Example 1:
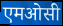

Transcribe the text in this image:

एमओसी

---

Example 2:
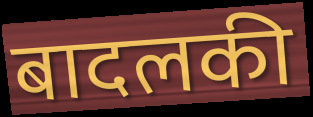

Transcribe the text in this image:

बादलकी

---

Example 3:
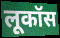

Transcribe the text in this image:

लूकॉस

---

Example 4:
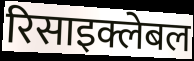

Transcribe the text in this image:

रिसाइक्लेबल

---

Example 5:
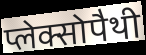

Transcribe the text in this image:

प्लेक्सोपैथी